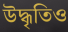
উদ্ধৃতিও